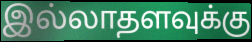
இல்லாதளவுக்கு